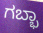
ಗಬ್ಭಾ